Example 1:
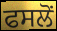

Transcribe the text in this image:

ਫਸਲੋਂ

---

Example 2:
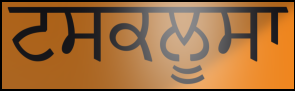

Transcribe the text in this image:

ਟਸਕਲੂਸਾ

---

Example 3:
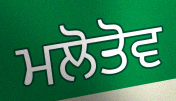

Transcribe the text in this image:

ਮਲੋਤੋਵ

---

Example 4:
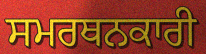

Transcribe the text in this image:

ਸਮਰਥਨਕਾਰੀ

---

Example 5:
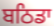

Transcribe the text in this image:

ਬਠਿਡਾ